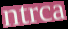
ntrca